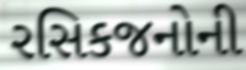
રસિકજનોની